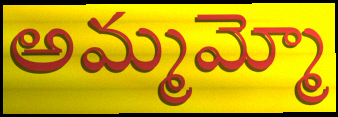
అమ్మమ్మో